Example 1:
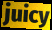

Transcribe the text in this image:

juicy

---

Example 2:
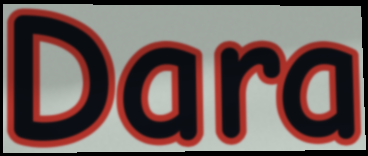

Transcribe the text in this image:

Dara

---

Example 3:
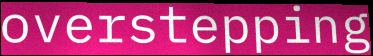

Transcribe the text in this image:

overstepping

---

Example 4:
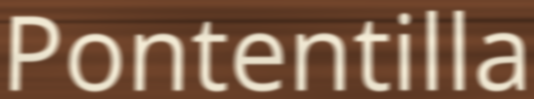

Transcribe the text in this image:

Pontentilla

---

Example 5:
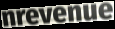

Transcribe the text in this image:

nrevenue